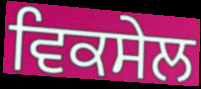
ਵਿਕਸੇਲ